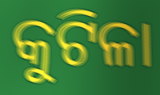
କୁଟିଳା